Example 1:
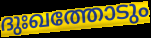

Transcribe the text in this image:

ദുഃഖത്തോടും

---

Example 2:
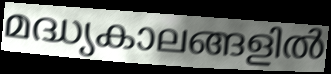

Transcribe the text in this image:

മദ്ധ്യകാലങ്ങളിൽ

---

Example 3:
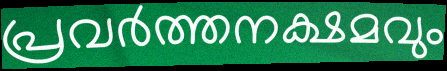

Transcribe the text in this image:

പ്രവർത്തനക്ഷമവും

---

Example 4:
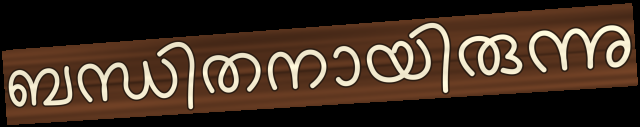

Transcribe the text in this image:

ബന്ധിതനായിരുന്നു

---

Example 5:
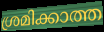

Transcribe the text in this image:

ശ്രമിക്കാത്ത